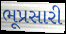
ભૂપ્રસારી